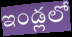
ఇండ్లలో